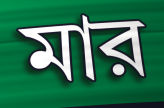
মার